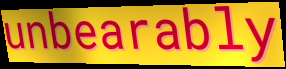
unbearably